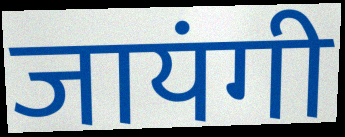
जायंगी